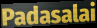
Padasalai